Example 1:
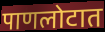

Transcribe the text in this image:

पाणलोटात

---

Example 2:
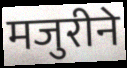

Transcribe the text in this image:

मजुरीने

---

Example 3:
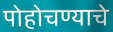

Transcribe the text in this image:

पोहोचण्याचे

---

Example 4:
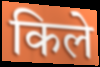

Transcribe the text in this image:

किले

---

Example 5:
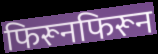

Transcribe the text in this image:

फिरूनफिरून